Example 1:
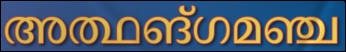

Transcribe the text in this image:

അത്ഥങ്ഗമഞ്ച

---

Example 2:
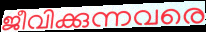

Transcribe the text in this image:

ജീവിക്കുന്നവരെ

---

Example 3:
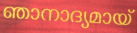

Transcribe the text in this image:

ഞാനാദ്യമായ്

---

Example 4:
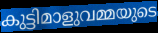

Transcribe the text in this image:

കുട്ടിമാളുവമ്മയുടെ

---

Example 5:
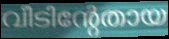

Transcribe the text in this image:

വീടിന്റേതായ